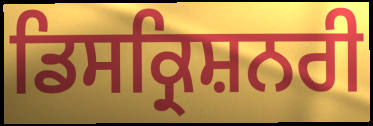
ਡਿਸਕ੍ਰਿਸ਼ਨਰੀ